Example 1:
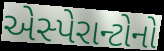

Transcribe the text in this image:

એસ્પેરાન્ટોનો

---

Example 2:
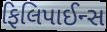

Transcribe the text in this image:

ફિલિપાઈન્સ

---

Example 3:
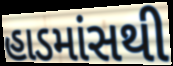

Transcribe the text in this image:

હાડમાંસથી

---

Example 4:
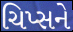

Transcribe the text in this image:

ચિપ્સને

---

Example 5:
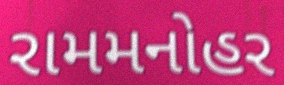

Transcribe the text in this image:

રામમનોહર